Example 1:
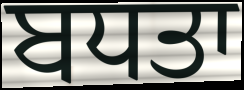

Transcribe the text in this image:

ਬਧਤਾ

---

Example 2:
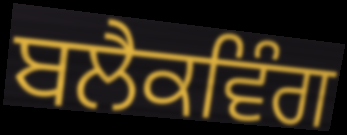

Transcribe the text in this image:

ਬਲੈਕਵਿੰਗ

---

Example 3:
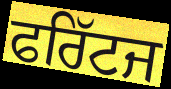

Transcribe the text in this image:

ਫਰਿੱਟਜ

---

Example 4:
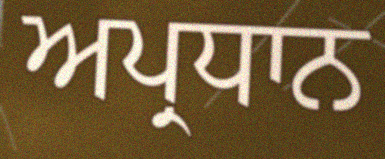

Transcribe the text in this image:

ਅਪ੍ਰਧਾਨ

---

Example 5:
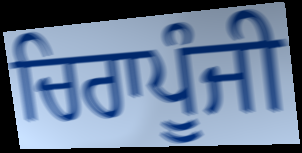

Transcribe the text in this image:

ਚਿਰਾਪੂੰਜੀ